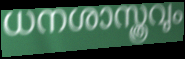
ധനശാസ്ത്രവും